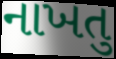
નાખતુ